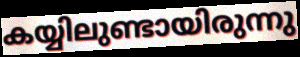
കയ്യിലുണ്ടായിരുന്നു